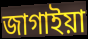
জাগাইয়া